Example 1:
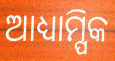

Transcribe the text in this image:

ଆଧ୍ୟାମ୍ପିକ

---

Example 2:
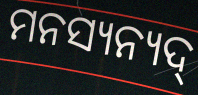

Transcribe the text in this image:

ମନସ୍ୟନ୍ୟଦ୍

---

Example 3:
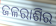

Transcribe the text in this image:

ଜଳରାଶିର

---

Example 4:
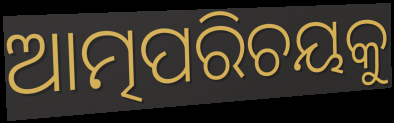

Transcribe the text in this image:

ଆତ୍ମପରିଚୟକୁ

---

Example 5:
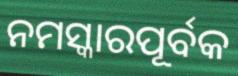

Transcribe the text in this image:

ନମସ୍କାରପୂର୍ବକ